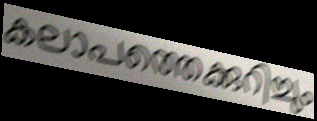
കലാപത്തെക്കുറിച്ചും